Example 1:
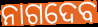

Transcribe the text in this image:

ନାଗଦେବ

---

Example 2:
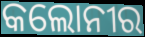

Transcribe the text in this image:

କଲୋନୀର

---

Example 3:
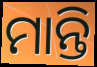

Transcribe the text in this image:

ମାନ୍ତି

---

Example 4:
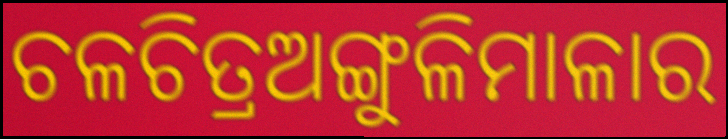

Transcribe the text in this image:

ଚଳଚିତ୍ରଅଙ୍ଗୁଳିମାଳାର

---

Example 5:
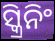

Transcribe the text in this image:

ସ୍କ୍ରିନିଂ